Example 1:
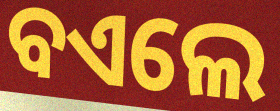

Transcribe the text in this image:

ବଏଲେ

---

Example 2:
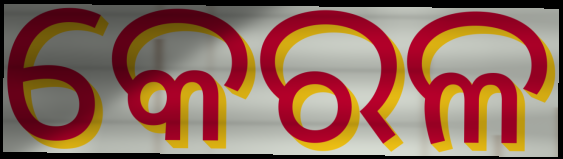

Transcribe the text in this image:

କେରଳ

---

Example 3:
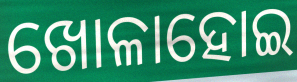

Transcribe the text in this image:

ଖୋଳାହୋଇ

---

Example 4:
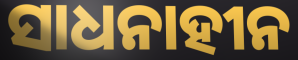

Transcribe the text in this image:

ସାଧନାହୀନ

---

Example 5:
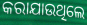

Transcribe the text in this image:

କରାଯାଉଥିଲେ